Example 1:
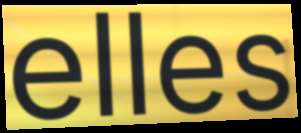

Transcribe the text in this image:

elles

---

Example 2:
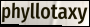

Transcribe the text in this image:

phyllotaxy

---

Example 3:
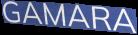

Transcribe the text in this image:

GAMARA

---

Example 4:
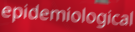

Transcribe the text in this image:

epidemiological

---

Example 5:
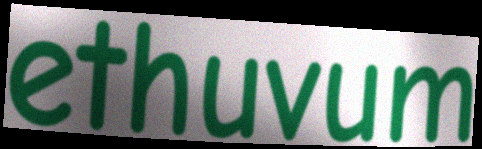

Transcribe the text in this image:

ethuvum